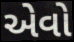
એેવો